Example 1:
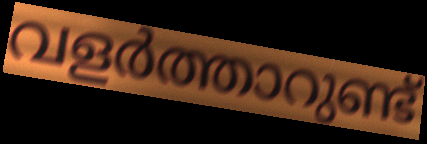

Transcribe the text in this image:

വളർത്താറുണ്ട്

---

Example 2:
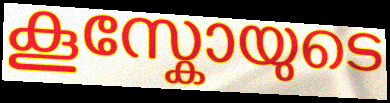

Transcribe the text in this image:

കൂസ്കോയുടെ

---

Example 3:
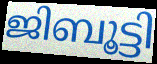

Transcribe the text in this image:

ജിബൂട്ടി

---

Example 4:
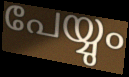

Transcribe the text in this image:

പേയ്യും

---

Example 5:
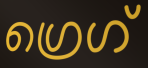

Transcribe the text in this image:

ഗ്രെഗ്